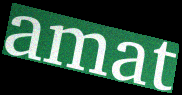
amat